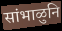
सांभाळुनि